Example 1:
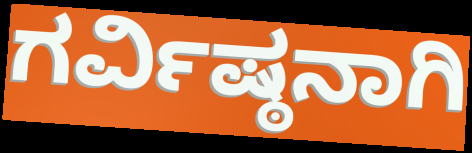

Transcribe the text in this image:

ಗರ್ವಿಷ್ಠನಾಗಿ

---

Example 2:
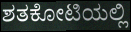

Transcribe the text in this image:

ಶತಕೋಟಿಯಲ್ಲಿ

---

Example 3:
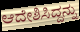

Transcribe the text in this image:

ಆದೇಶಿಸಿದ್ದನ್ನು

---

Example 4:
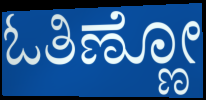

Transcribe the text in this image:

ಓತಿಣ್ಣೋ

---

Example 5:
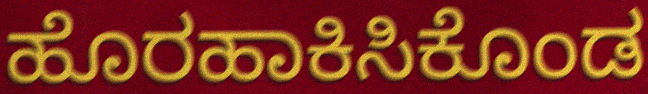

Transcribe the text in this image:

ಹೊರಹಾಕಿಸಿಕೊಂಡ